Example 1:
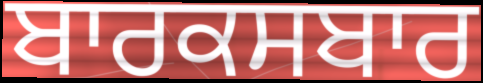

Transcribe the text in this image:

ਬਾਰਕਸਬਾਰ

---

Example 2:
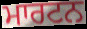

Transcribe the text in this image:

ਮਾਰਟਨ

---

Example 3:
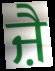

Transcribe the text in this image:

ਜ਼ੈ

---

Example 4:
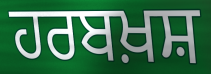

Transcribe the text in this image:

ਹਰਬਖ਼ਸ਼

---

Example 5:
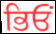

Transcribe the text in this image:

ਭਿਓਂ